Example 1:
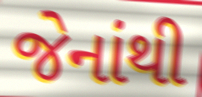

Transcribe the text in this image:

જેનાંથી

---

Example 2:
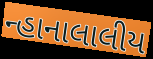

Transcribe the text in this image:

ન્હાનાલાલીય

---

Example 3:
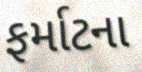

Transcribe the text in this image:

ફર્માટના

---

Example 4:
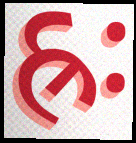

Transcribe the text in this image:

હ્રઃ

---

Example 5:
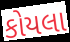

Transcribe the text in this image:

કોયલા